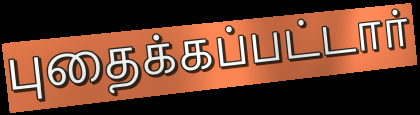
புதைக்கப்பட்டார்